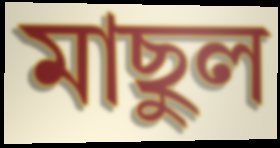
মাছুল